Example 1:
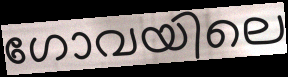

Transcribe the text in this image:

ഗോവയിലെ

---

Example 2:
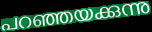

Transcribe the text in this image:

പറഞ്ഞയക്കുന്നു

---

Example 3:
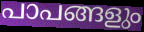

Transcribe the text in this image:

പാപങ്ങളും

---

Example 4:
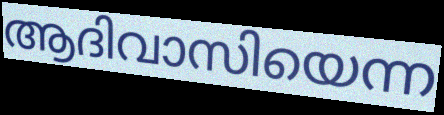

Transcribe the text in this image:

ആദിവാസിയെന്ന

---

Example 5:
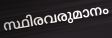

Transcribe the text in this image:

സ്ഥിരവരുമാനം